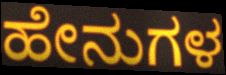
ಹೇನುಗಳ